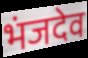
भंजदेव